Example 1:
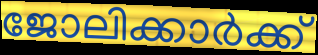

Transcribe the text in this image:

ജോലിക്കാർക്ക്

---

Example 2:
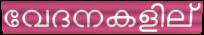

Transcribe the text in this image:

വേദനകളില്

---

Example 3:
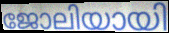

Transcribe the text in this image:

ജോലിയായി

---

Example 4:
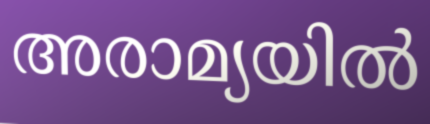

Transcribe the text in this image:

അരാമ്യയിൽ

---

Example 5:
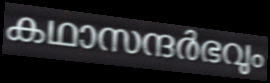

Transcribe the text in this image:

കഥാസന്ദർഭവും